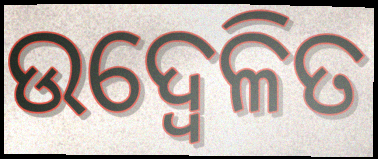
ଉଦ୍ବେଳିତ